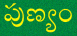
పుణ్యం